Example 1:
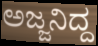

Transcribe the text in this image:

ಅಜ್ಜನಿದ್ದ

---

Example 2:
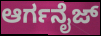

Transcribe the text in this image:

ಆರ್ಗನೈಜ್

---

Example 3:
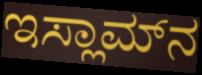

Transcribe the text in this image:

ಇಸ್ಲಾಮ್‌ನ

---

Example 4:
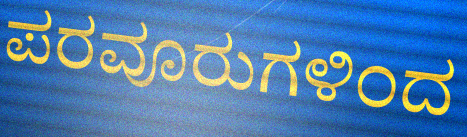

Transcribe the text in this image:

ಪರವೂರುಗಳಿಂದ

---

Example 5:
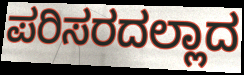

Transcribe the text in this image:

ಪರಿಸರದಲ್ಲಾದ